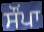
ਸੌਂਪਾ